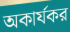
অকার্যকর